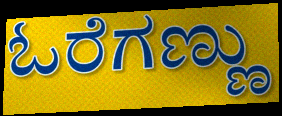
ಓರೆಗಣ್ಣು